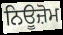
ਨਿਊਜ਼ੋਮ